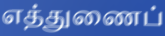
எத்துணைப்